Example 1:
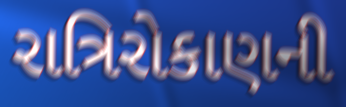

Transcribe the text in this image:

રાત્રિરોકાણની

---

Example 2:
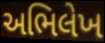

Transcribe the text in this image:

અભિલેખ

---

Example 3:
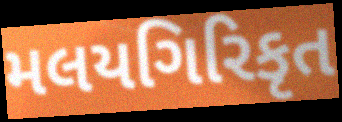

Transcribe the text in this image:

મલયગિરિકૃત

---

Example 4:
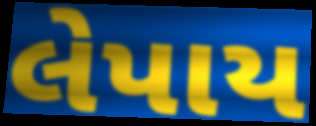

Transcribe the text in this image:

લેપાય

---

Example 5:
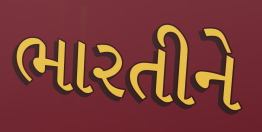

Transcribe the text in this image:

ભારતીને